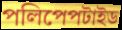
পলিপেপটাইড